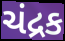
ચંદ્રક